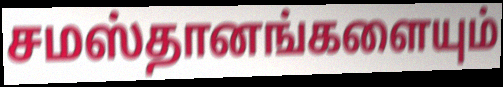
சமஸ்தானங்களையும்